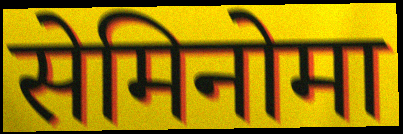
सेमिनोमा